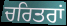
ਚਰਿਤਰਾਂ